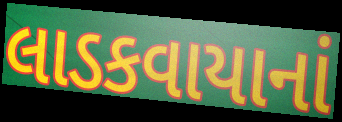
લાડકવાયાનાં